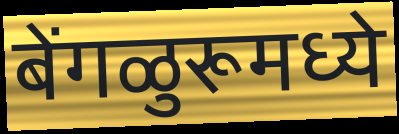
बेंगळुरूमध्ये